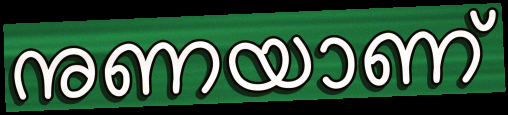
നുണയാണ്